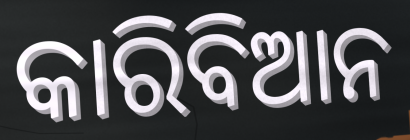
କାରିବିଆନ